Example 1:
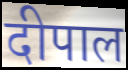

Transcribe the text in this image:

दीपाल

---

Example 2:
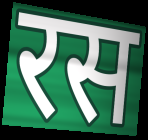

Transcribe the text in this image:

रस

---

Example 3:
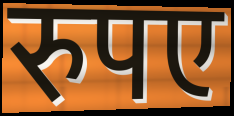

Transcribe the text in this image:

रुपए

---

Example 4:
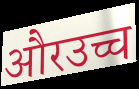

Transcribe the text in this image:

औरउच्च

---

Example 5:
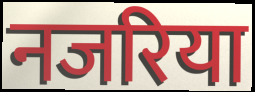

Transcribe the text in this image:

नजरिया